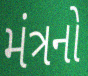
મંત્રનો